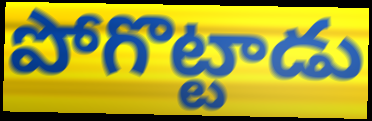
పోగొట్టాడు